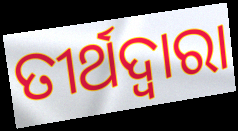
ତୀର୍ଥଦ୍ବାରା